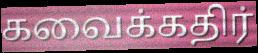
கவைக்கதிர்